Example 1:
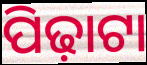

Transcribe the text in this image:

ପିଢ଼ାଟା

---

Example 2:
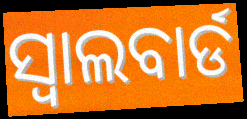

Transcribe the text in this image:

ସ୍ୱାଲବାର୍ଡ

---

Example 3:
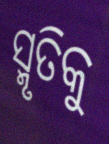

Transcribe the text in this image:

ସ୍ମୃତିକୁ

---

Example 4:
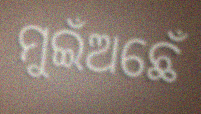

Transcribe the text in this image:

ମୁଇଁଅଛେଁ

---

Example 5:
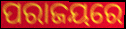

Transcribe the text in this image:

ପରାଜୟରେ